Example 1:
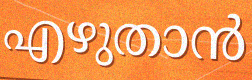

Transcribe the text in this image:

എഴുതാൻ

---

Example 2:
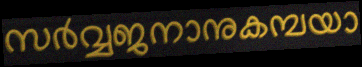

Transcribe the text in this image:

സർവ്വജനാനുകമ്പയാ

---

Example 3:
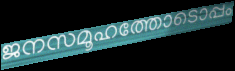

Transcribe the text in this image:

ജനസമൂഹത്തോടൊപ്പം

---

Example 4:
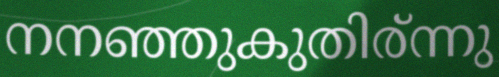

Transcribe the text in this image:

നനഞ്ഞുകുതിര്ന്നു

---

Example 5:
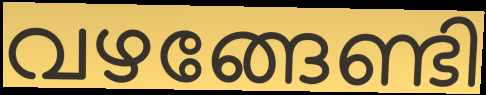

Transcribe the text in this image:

വഴങ്ങേണ്ടി